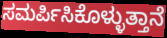
ಸಮರ್ಪಿಸಿಕೊಳ್ಳುತ್ತಾನೆ